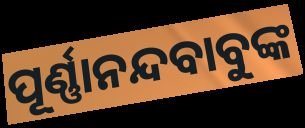
ପୂର୍ଣ୍ଣାନନ୍ଦବାବୁଙ୍କ